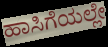
ಹಾಸಿಗೆಯಲ್ಲೇ